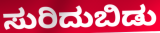
ಸುರಿದುಬಿಡು